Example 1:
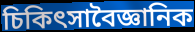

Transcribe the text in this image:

চিকিৎসাবৈজ্ঞানিক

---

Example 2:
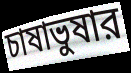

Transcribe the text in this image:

চাষাভুষার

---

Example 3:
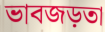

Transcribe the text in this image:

ভাবজড়তা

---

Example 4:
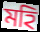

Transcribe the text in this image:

মহি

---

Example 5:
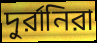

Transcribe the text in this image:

দুর্রানিরা